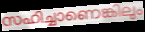
സഹിച്ചാണെങ്കിലും